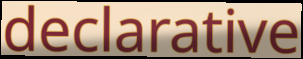
declarative